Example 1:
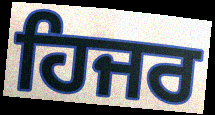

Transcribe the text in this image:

ਹਿਜਰ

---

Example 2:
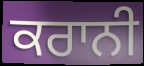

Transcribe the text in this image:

ਕਰਾਨੀ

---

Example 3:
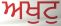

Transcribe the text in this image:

ਅਖੁਟੁ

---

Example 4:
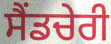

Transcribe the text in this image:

ਸੈਂਡਚੇਰੀ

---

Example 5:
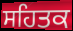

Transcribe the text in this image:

ਸਹਿਤਕ